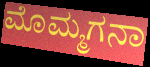
ಮೊಮ್ಮಗನಾ